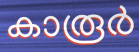
കാരൂർ